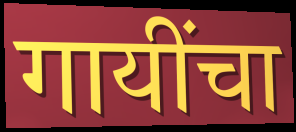
गायींचा